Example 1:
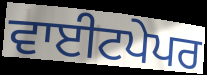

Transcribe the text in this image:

ਵਾਈਟਪੇਪਰ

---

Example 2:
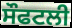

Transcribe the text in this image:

ਸੌਫਟਲੀ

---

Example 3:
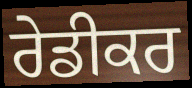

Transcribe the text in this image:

ਰੇਡੀਕਰ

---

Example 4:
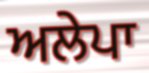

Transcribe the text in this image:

ਅਲੇਪਾ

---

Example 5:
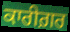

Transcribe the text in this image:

ਕਾਰੀਗ਼ਰ